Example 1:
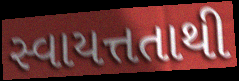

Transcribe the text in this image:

સ્વાયત્તતાથી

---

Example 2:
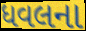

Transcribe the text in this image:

ધવલના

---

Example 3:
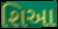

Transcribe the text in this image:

શિઆ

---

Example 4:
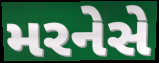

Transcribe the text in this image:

મરનેસે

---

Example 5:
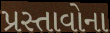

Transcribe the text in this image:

પ્રસ્તાવોના